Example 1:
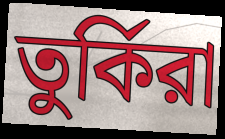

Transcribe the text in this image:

তুর্কিরা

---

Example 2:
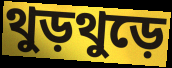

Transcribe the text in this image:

থুড়থুড়ে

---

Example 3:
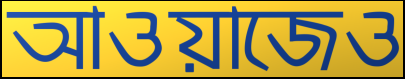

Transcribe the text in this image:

আওয়াজেও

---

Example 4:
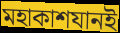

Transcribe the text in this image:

মহাকাশযানই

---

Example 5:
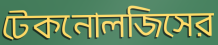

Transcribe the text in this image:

টেকনোলজিসের